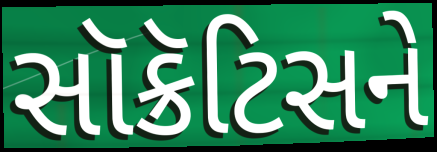
સૉક્રૅટિસને